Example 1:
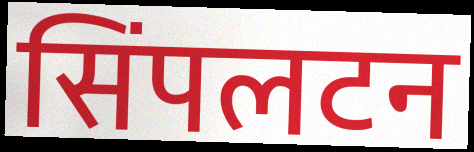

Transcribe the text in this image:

सिंपलटन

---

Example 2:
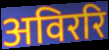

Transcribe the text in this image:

अविररि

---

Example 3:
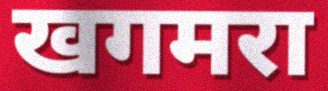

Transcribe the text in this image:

खगमरा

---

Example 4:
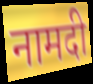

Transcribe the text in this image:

नामदी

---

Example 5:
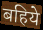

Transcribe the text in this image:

बहिये